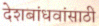
देशबांधवांसाठी